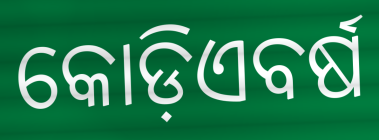
କୋଡ଼ିଏବର୍ଷ